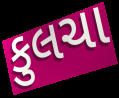
કુલચા